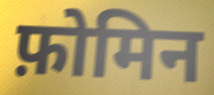
फ़ोमिन